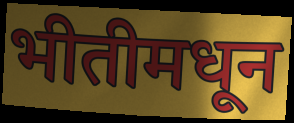
भीतीमधून